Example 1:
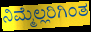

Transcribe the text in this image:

ನಿಮ್ಮೆಲ್ಲರಿಗಿಂತ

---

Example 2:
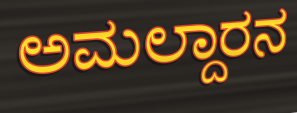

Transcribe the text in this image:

ಅಮಲ್ದಾರನ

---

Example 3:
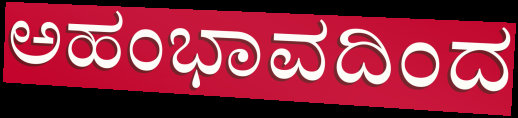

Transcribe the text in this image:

ಅಹಂಭಾವದಿಂದ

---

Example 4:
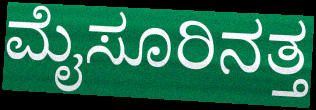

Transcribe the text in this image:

ಮೈಸೂರಿನತ್ತ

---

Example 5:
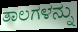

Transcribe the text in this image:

ತಾಲಗಳನ್ನು